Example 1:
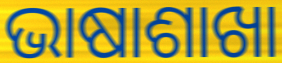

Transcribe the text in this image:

ଭାଷାଶାଖା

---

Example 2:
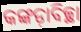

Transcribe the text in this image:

କଙ୍କଡ଼ାବିଚ୍ଛା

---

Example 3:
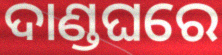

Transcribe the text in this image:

ଦାଣ୍ଡଘରେ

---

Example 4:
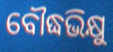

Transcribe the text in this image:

ବୌଦ୍ଧଭିକ୍ଷୁ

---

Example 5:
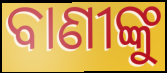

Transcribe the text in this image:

ବାଣୀଙ୍କୁ